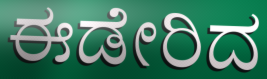
ಈಡೇರಿದ